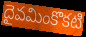
దైవమింకొకటి